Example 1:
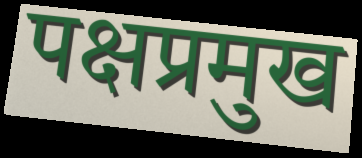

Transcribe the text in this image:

पक्षप्रमुख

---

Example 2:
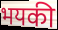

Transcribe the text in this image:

भयकी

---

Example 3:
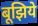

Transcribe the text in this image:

बूझिये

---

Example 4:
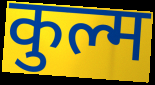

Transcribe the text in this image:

कुल्म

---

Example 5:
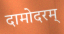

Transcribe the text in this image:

दामोदरम्